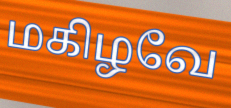
மகிழவே